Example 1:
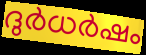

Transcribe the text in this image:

ദുർധർഷം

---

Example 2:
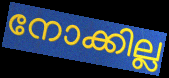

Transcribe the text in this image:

നോക്കില്ല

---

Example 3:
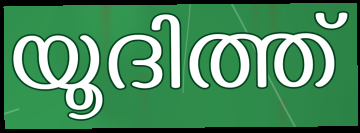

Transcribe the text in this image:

യൂദിത്ത്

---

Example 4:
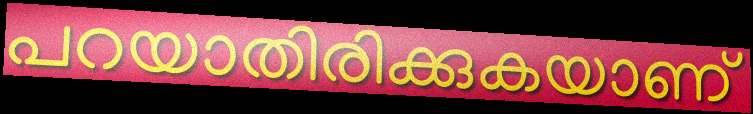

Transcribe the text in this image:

പറയാതിരിക്കുകയാണ്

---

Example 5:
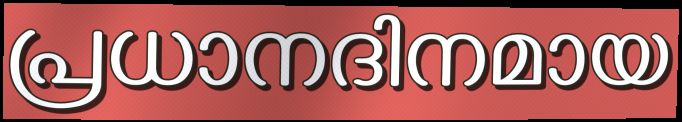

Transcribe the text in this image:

പ്രധാനദിനമായ